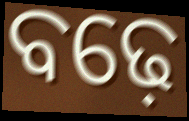
ବଢ଼େ